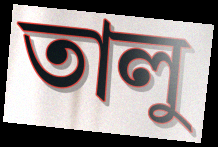
তালু